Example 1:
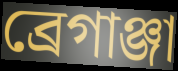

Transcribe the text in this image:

ব্রেগাঞ্জা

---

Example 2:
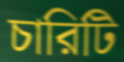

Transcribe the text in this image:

চারিটি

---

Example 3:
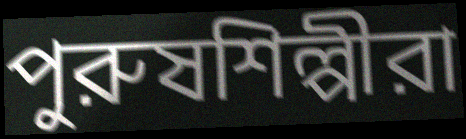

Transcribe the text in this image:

পুরুষশিল্পীরা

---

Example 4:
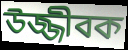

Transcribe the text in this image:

উজ্জীবক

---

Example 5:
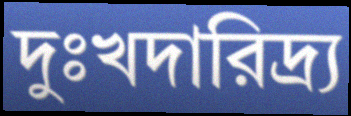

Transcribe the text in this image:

দুঃখদারিদ্র্য